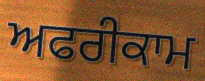
ਅਫਰੀਕਾਮ